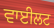
ਵਾਈਲਟ